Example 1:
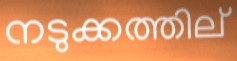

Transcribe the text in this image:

നടുക്കത്തില്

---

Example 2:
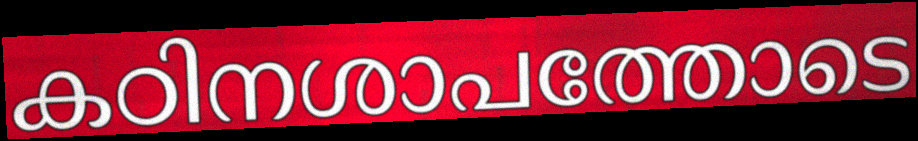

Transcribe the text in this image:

കഠിനശാപത്തോടെ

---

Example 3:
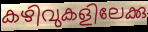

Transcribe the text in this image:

കഴിവുകളിലേക്കു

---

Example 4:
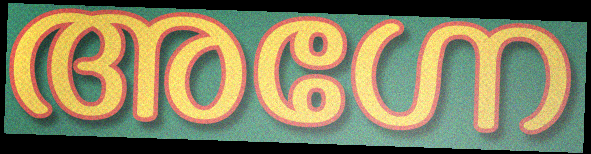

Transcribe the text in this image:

അഗ്നേ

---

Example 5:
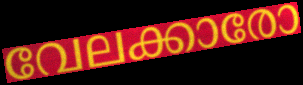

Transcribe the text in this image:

വേലക്കാരോ